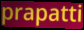
prapatti